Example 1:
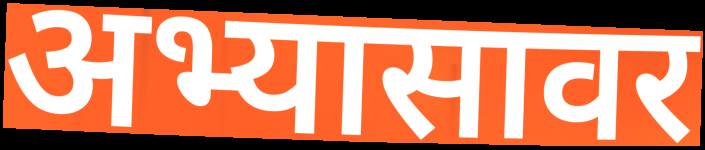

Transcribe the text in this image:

अभ्यासावर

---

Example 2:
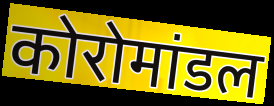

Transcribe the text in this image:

कोरोमांडल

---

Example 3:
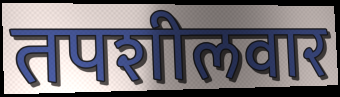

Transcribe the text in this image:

तपशीलवार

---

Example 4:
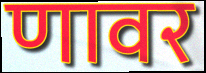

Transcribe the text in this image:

णावर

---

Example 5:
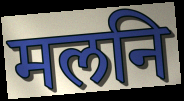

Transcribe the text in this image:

मलनि